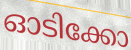
ഓടിക്കോ